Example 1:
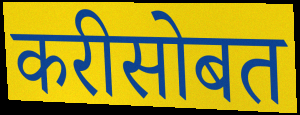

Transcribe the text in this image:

करीसोबत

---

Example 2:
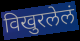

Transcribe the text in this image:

विखुरलेलं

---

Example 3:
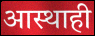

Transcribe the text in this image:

आस्थाही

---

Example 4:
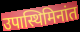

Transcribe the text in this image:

उपास्थिमिनांत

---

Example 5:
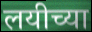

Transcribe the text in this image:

लयीच्या